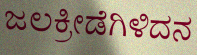
ಜಲಕ್ರೀಡೆಗಿಳಿದನ